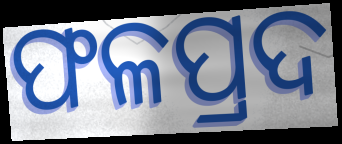
ଫଳପ୍ରଦ